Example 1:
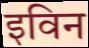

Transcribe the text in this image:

इविन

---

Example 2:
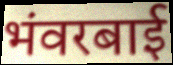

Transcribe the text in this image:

भंवरबाई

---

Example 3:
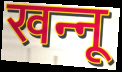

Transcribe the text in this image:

खन्नू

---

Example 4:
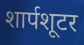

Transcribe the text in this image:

शार्पशूटर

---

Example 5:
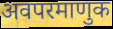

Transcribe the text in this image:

अवपरमाणुक